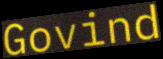
Govind